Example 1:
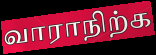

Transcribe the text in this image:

வாராநிற்க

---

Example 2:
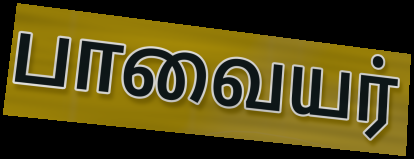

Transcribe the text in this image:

பாவையர்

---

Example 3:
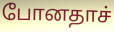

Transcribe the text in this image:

போனதாச்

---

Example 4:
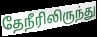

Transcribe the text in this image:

தேநீரிலிருந்து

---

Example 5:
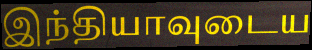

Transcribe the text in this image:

இந்தியாவுடைய